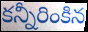
కన్నీరింకిన